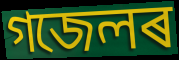
গজেলৰ